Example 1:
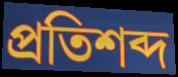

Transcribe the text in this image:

প্ৰতিশব্দ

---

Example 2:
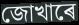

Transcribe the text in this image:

জোখাৰে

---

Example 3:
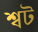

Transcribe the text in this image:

শ্বট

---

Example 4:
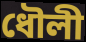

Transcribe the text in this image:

ধৌলী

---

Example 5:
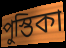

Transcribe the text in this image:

পুস্তিকা